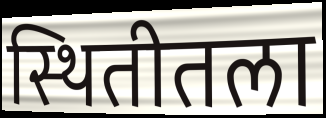
स्थितीतला